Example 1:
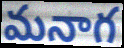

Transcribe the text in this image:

మనాగ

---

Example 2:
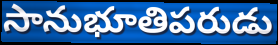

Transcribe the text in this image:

సానుభూతిపరుడు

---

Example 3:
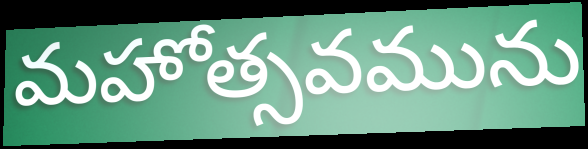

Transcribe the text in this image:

మహోత్సవమును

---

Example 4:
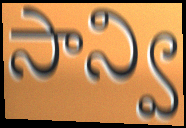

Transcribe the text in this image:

సాన్వి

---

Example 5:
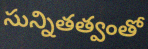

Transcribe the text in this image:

సున్నితత్వంతో